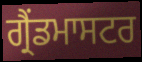
ਗ੍ਰੈਂਡਮਾਸਟਰ